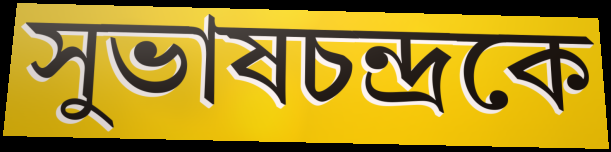
সুভাষচন্দ্রকে